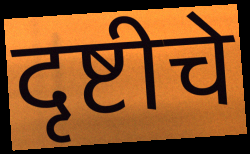
दृष्टीचे